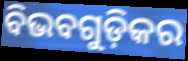
ବିଭବଗୁଡ଼ିକର